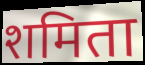
शमिता